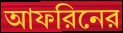
আফরিনের